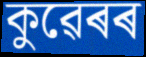
কুৱেৰৰ